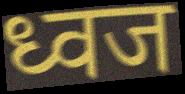
ध्वज